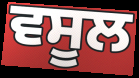
ਵਸੂਲ